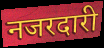
नजरदारी